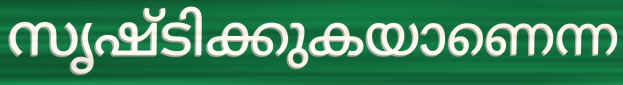
സൃഷ്ടിക്കുകയാണെന്ന